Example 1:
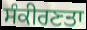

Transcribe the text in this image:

ਸੰਕੀਰਣਤਾ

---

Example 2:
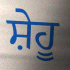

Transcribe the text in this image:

ਸ਼ੇਹੂ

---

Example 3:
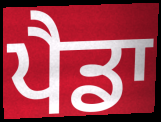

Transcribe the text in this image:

ਪੈਡਾ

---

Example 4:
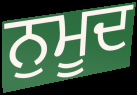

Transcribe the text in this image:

ਨੁਮੂਦ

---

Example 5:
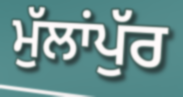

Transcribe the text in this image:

ਮੁੱਲਾਂਪੁੱਰ